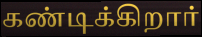
கண்டிக்கிறார்